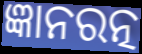
ଜ୍ଞାନରତ୍ନ